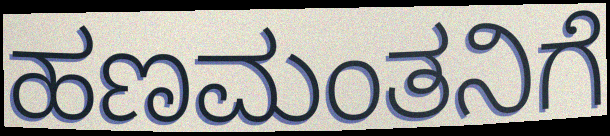
ಹಣಮಂತನಿಗೆ